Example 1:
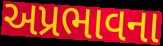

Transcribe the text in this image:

અપ્રભાવના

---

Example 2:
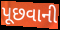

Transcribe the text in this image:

પૂછવાની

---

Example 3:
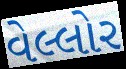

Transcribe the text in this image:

વેલ્લોર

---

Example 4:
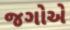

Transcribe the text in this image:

જગોએ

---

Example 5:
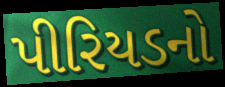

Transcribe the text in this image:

પીરિયડનો